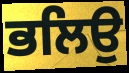
ਭਲਿਉ